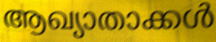
ആഖ്യാതാക്കൾ